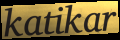
katikar